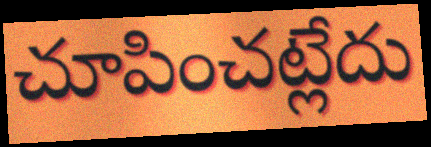
చూపించట్లేదు